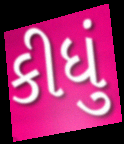
કીધું